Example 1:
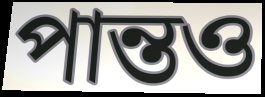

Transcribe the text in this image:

পান্তও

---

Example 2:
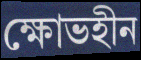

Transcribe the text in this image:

ক্ষোভহীন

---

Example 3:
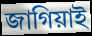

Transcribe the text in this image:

জাগিয়াই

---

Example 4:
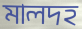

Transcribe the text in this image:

মালদহ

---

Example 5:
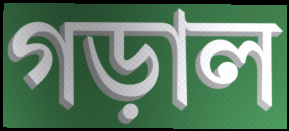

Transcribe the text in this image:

গড়াল